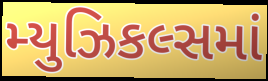
મ્યુઝિકલ્સમાં